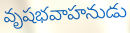
వృషభవాహనుడు